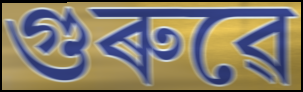
গুৰুৱে